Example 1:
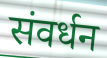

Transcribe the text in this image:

संवर्धन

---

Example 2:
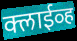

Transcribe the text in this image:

क्लाईव्ह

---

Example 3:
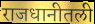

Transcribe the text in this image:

राजधानीतली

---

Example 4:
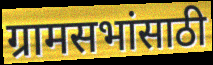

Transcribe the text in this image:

ग्रामसभांसाठी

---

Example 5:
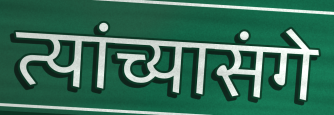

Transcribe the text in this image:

त्यांच्यासंगे